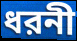
ধরনী